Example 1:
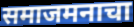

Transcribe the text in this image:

समाजमनाचा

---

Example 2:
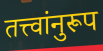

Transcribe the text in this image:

तत्त्वांनुरूप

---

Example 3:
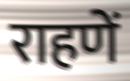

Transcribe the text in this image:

राहणें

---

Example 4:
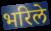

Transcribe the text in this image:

भरिले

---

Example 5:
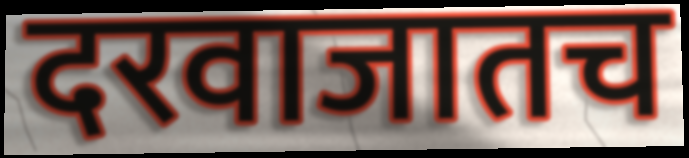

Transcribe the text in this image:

दरवाजातच